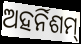
ଅହର୍ନିଶମ୍